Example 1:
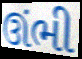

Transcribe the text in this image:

ઊંભી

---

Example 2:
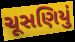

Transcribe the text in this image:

ચૂસણિયું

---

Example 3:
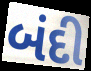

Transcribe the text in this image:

બંદી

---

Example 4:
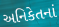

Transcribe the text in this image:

અનિકેતનાં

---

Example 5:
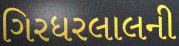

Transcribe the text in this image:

ગિરધરલાલની